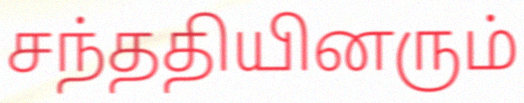
சந்ததியினரும்